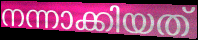
നന്നാക്കിയത്